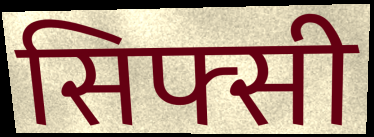
सिफ्सी